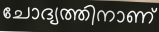
ചോദ്യത്തിനാണ്